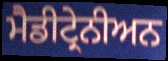
ਮੈਡੀਟ੍ਰੇਨੀਅਨ